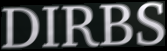
DIRBS